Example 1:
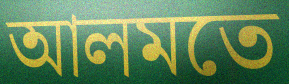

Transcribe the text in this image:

আলমতে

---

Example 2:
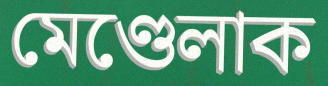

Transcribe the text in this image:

মেণ্ডেলাক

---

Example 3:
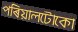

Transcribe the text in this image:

পৰিয়ালটোকো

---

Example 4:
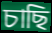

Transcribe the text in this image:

চাছি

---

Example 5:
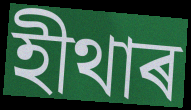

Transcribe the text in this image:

হীথাৰ